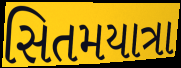
સિતમયાત્રા